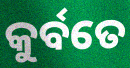
କୁର୍ବତେ